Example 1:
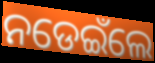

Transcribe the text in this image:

ନଡେଇଁଲେ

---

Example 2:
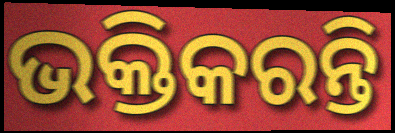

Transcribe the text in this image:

ଭକ୍ତିକରନ୍ତି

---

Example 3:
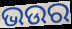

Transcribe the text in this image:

ଭଉର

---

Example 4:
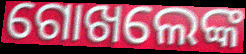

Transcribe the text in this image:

ଗୋଖଲେଙ୍କ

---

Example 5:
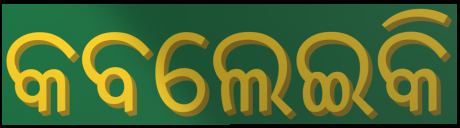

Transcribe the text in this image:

କବଲେଇକି